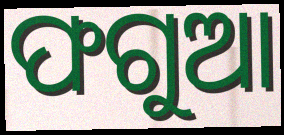
ଫଗୁଆ